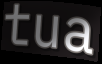
tua